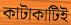
কাটাকাটিই